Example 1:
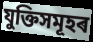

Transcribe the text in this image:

যুক্তিসমূহৰ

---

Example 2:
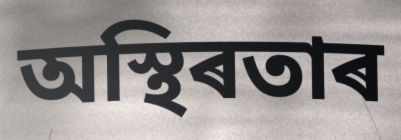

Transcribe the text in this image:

অস্থিৰতাৰ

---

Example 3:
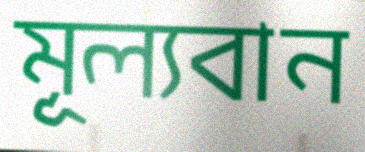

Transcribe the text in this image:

মূল্যবান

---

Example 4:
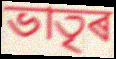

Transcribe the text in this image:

ভাতৃৰ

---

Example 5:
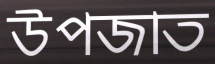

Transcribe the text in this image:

উপজাত